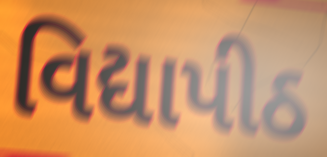
વિદ્યાપીઠ